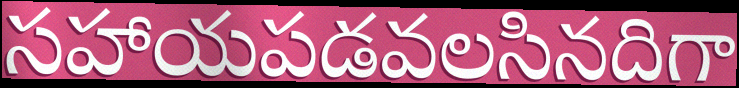
సహాయపడవలసినదిగా